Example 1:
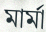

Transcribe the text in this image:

মার্মা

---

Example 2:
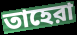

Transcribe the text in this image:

তাহেরা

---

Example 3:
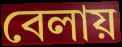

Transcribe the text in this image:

বেলায়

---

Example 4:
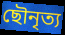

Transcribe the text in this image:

ছৌনৃত্য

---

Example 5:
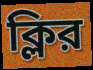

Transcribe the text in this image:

ক্লির